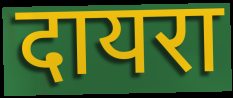
दायरा